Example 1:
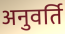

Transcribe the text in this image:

अनुवर्ति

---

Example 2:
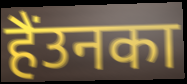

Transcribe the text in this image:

हैंउनका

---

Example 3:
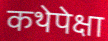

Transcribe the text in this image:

कथेपेक्षा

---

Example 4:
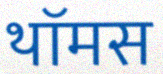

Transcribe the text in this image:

थॉमस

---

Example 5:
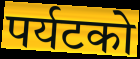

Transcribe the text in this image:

पर्यटको